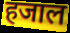
हजाल